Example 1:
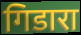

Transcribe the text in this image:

गिडारा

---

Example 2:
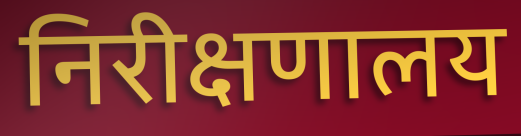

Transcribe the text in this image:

निरीक्षणालय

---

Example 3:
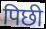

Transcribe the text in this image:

पिछी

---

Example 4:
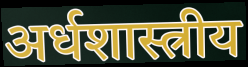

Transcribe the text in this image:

अर्धशास्त्रीय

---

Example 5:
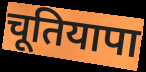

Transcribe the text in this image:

चूतियापा